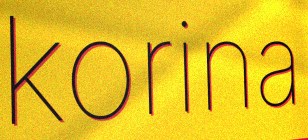
korina